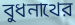
বুধনাথের